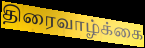
திரைவாழ்க்கை